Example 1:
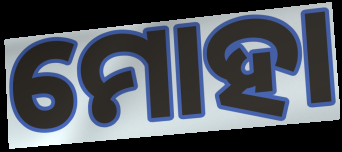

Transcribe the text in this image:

ମୋହା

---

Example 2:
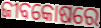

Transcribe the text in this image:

ଜୀବକୋଷରେ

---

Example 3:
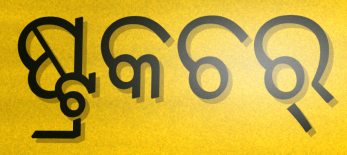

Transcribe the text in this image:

ଷ୍ଟ୍ରକଚର୍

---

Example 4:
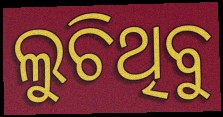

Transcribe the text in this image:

ଲୁଚିଥିବୁ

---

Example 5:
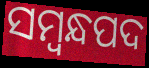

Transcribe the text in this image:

ସମ୍ବନ୍ଧପଦ